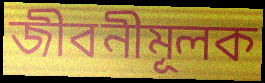
জীবনীমূলক